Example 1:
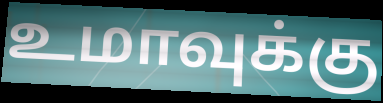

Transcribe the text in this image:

உமாவுக்கு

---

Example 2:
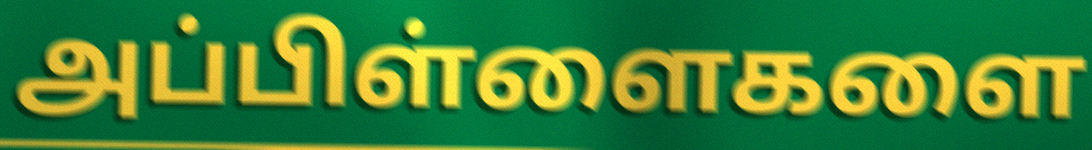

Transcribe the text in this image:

அப்பிள்ளைகளை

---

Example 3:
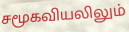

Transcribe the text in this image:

சமூகவியலிலும்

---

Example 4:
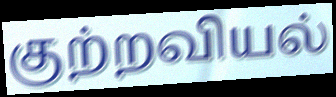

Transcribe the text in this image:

குற்றவியல்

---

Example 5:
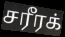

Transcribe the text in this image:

சரீரக்